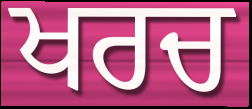
ਖਰਚ